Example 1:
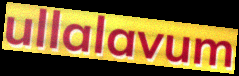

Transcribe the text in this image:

ullalavum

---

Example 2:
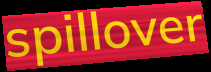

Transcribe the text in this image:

spillover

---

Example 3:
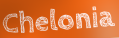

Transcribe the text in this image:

Chelonia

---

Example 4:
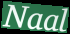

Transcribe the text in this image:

Naal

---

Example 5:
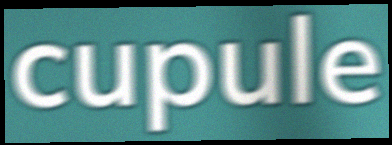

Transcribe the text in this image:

cupule